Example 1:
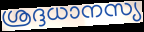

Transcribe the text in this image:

ശ്രദ്ദധാനസ്യ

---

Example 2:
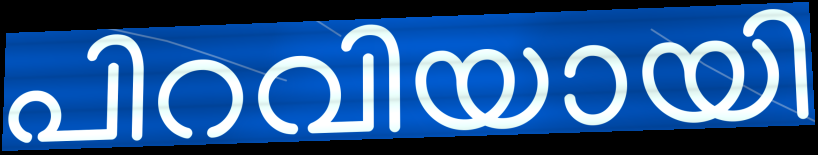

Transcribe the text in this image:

പിറവിയായി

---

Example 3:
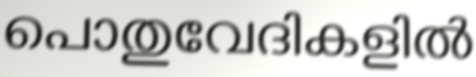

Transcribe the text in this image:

പൊതുവേദികളിൽ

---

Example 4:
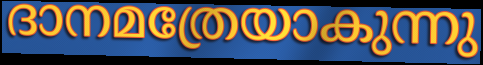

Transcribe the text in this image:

ദാനമത്രേയാകുന്നു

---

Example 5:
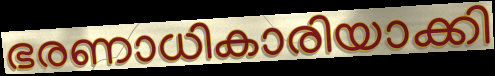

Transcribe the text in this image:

ഭരണാധികാരിയാക്കി